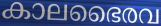
കാലഭൈരവ